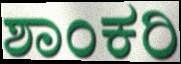
ಶಾಂಕರಿ